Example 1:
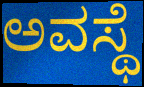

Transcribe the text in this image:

ಅವಸ್ಥೆ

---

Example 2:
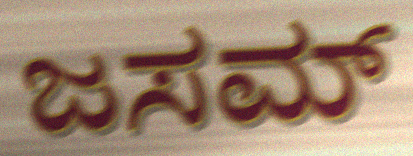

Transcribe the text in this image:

ಜಸಮ್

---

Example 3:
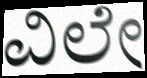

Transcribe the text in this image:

ವಿಲೇ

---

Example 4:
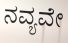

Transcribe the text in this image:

ನವ್ಯವೇ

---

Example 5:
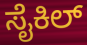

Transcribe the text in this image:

ಸೈಕಿಲ್